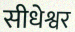
सीधेश्वर